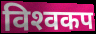
विश्‍वकप